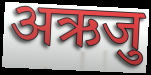
अऋजु